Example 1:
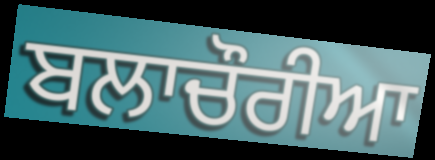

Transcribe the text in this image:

ਬਲਾਚੌਰੀਆ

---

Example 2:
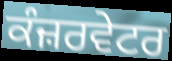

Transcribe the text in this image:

ਕੰਜ਼ਰਵੇਟਰ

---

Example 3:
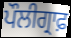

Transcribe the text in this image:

ਪੌਲੀਗ੍ਰਾਫ਼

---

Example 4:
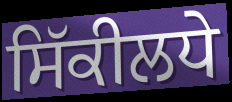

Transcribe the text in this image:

ਸਿੱਕੀਲਧੇ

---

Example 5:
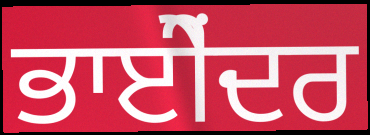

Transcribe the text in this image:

ਭਾਈੇਂਦਰ